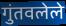
गुंतवलेले